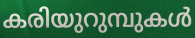
കരിയുറുമ്പുകൾ